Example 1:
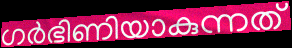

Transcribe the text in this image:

ഗർഭിണിയാകുന്നത്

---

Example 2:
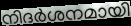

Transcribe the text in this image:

നിദർശനമായി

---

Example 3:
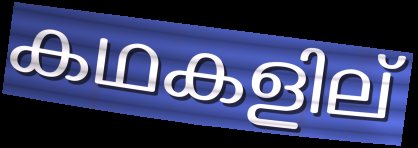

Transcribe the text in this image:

കഥകളില്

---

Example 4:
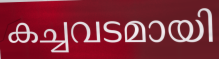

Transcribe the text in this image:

കച്ചവടമായി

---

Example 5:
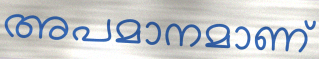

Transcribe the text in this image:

അപമാനമാണ്